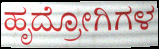
ಹೃದ್ರೋಗಿಗಳ